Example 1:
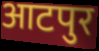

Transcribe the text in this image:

आटपुर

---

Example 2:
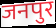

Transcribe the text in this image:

जनपुर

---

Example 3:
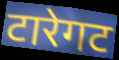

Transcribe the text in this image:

टारेगट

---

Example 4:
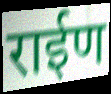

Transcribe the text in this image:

राईण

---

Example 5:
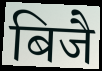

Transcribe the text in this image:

बिजै